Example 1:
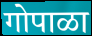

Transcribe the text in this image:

गोपाळा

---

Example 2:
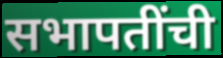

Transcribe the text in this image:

सभापतींची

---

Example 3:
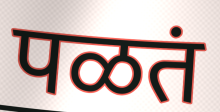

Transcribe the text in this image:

पळतं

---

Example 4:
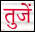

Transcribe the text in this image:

तुजें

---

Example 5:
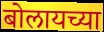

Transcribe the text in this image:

बोलायच्या